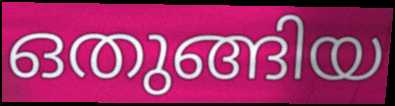
ഒതുങ്ങിയ